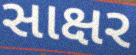
સાક્ષર